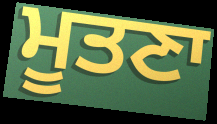
ਮੂਤਣਾ